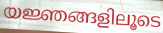
യജ്ഞങ്ങളിലൂടെ